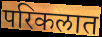
परिकलात